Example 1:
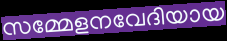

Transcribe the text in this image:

സമ്മേളനവേദിയായ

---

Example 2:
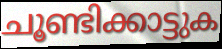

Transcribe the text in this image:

ചൂണ്ടിക്കാട്ടുക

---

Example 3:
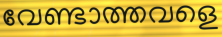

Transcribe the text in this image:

വേണ്ടാത്തവളെ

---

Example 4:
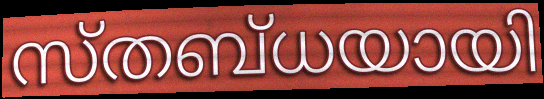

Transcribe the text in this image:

സ്തബ്ധയായി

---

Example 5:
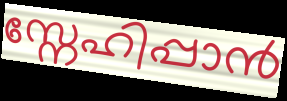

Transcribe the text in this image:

സ്നേഹിപ്പാൻ